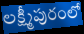
లక్ష్మీపురంలో